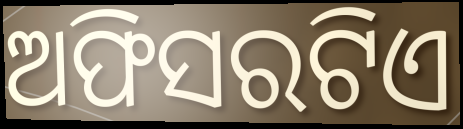
ଅଫିସରଟିଏ